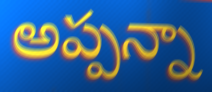
అప్పన్నా